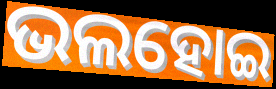
ଭଲହୋଇ